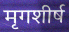
मृगशीर्ष